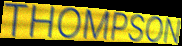
THOMPSON